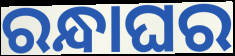
ରନ୍ଧାଘର